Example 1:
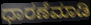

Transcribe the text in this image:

ಧಾರಣೆಮಾಡಿ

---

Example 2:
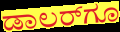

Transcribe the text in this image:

ಡಾಲರ್‌ಗೂ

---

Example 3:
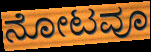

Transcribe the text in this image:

ನೋಟವೂ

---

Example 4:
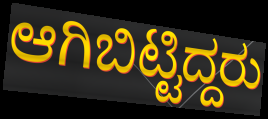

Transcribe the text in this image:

ಆಗಿಬಿಟ್ಟಿದ್ದರು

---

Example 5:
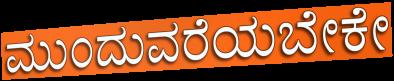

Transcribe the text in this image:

ಮುಂದುವರೆಯಬೇಕೇ